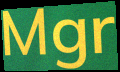
Mgr